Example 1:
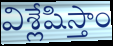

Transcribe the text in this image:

విశ్లేషిస్తాం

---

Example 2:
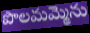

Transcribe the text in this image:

పొలమమ్మెను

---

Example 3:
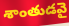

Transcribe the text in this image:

శాంతుడవై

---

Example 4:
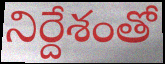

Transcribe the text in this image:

నిర్దేశంతో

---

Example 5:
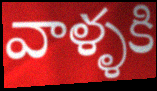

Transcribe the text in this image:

వాళ్ళకి